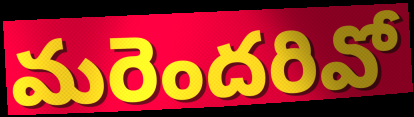
మరెందరివో